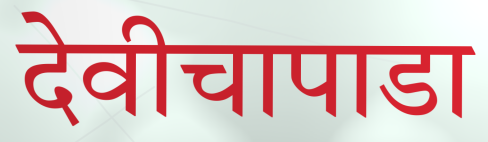
देवीचापाडा